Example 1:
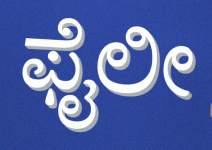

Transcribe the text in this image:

ಫೈಲೀ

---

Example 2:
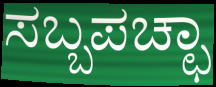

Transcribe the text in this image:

ಸಬ್ಬಪಚ್ಛಾ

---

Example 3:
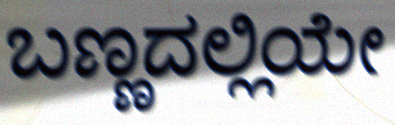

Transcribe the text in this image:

ಬಣ್ಣದಲ್ಲಿಯೇ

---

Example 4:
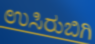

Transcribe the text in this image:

ಉಸಿರುಬಿಗಿ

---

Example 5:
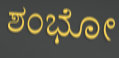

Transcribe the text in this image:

ಶಂಭೋ